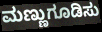
ಮಣ್ಣುಗೂಡಿಸು